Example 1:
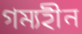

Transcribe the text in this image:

গম্যহীন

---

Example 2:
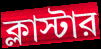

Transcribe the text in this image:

ক্লাস্টার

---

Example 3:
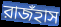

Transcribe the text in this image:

রাজঁহাস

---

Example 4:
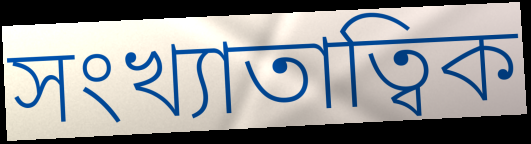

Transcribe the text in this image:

সংখ্যাতাত্বিক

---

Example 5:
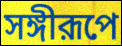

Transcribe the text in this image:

সঙ্গীরূপে